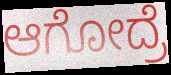
ಆಗೋದ್ರೆ